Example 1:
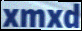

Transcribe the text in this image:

xmxd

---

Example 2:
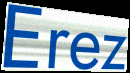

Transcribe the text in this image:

Erez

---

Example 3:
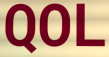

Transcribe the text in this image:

QOL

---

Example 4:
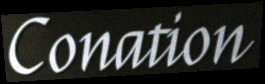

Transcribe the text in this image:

Conation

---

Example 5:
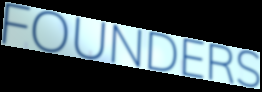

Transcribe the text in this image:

FOUNDERS